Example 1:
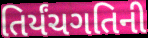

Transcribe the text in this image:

તિર્યંચગતિની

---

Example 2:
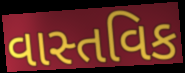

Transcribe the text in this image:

વાસ્તવિક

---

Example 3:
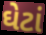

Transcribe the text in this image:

ઘેટાં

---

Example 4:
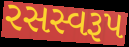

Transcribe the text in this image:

રસસ્વરૂપ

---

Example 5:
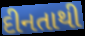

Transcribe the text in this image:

દીનતાથી